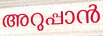
അറുപ്പാൻ